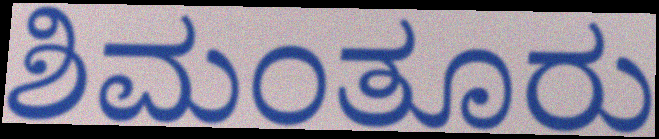
ಶಿಮಂತೂರು